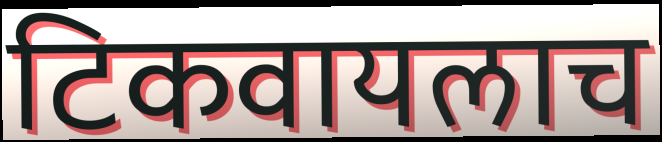
टिकवायलाच